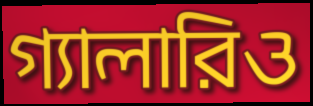
গ্যালারিও